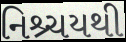
નિશ્ર્ચયથી